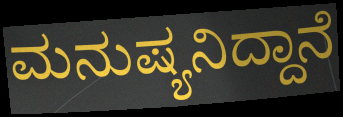
ಮನುಷ್ಯನಿದ್ದಾನೆ